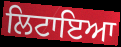
ਲਿਟਾਇਆ